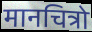
मानचित्रो